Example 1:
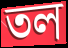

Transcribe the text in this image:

তল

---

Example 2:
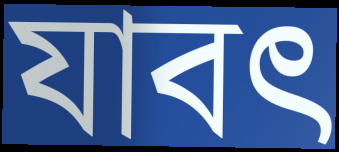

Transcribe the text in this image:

যাবৎ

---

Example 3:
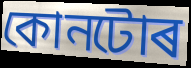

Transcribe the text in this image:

কোনটোৰ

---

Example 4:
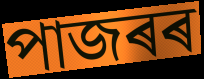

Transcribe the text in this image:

পাজৰৰ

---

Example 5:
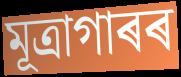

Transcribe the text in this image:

মূত্ৰাগাৰৰ